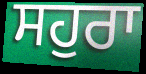
ਸਹੁਰਾ